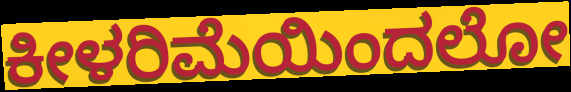
ಕೀಳರಿಮೆಯಿಂದಲೋ